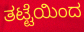
ತಟ್ಟೆಯಿಂದ